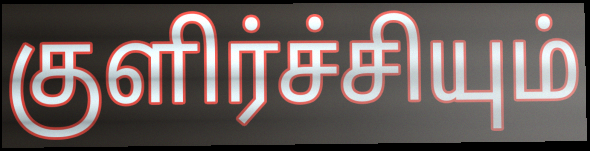
குளிர்ச்சியும்